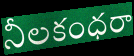
నీలకంధరా